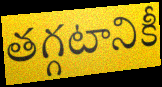
తగ్గటానికీ